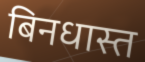
बिनधास्त